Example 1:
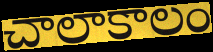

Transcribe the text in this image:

చాలాకాలం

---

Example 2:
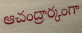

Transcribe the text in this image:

ఆచంద్రార్కంగా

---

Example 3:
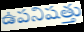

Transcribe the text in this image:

ఉపనిషత్తు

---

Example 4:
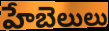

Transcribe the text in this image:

హేబెలులు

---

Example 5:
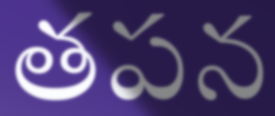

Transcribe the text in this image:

తపన